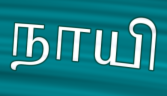
நாயி